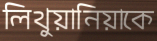
লিথুয়ানিয়াকে